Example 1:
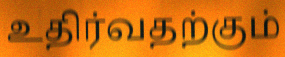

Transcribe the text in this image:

உதிர்வதற்கும்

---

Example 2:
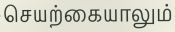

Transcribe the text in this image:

செயற்கையாலும்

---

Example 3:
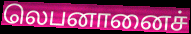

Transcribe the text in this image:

லெபனானைச்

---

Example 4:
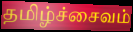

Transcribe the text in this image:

தமிழ்ச்சைவம்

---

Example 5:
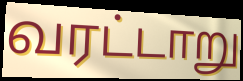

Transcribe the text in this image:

வரட்டாறு